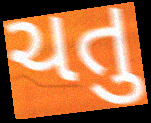
ચતુ